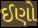
ઈણો